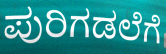
ಪುರಿಗಡಲೆಗೆ